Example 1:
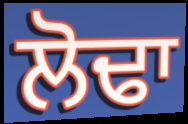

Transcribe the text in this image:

ਲੋਢਾ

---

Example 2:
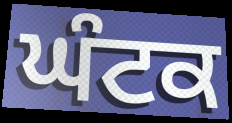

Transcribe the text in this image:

ਘੰਟਕ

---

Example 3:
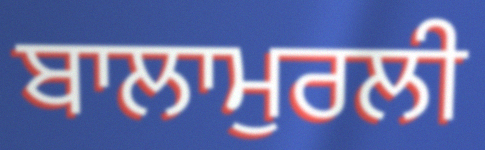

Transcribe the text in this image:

ਬਾਲਾਮੁਰਲੀ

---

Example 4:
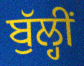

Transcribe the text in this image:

ਬੁੱਲ੍ਹੀਂ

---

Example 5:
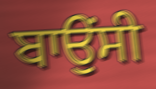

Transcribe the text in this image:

ਬਾਉਂਸੀ